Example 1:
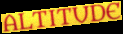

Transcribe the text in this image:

ALTITUDE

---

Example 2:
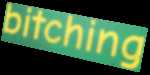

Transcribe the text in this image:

bitching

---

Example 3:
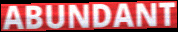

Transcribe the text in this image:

ABUNDANT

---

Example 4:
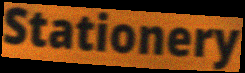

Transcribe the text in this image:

Stationery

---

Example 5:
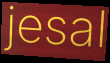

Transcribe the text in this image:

jesal